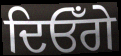
ਦਿਓਁਗੇ